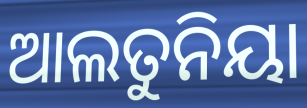
ଆଲତୁନିୟା